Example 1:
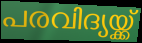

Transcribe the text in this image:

പരവിദ്യയ്ക്ക്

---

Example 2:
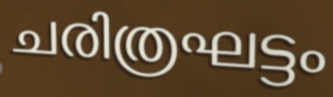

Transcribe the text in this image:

ചരിത്രഘട്ടം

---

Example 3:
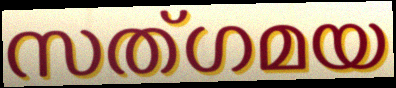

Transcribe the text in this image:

സത്ഗമയ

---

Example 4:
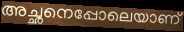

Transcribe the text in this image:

അച്ഛനെപ്പോലെയാണ്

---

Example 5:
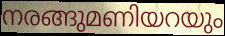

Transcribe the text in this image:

നരങ്ങുമണിയറയും